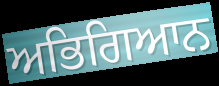
ਅਭਿਗਿਆਨ